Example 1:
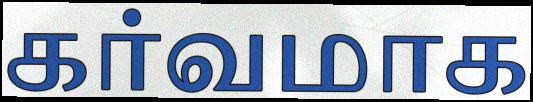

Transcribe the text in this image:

கர்வமாக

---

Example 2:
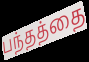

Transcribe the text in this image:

பந்தத்தை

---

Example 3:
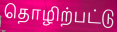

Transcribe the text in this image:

தொழிற்பட்டு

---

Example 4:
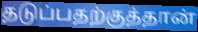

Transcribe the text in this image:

தடுப்பதற்குத்தான்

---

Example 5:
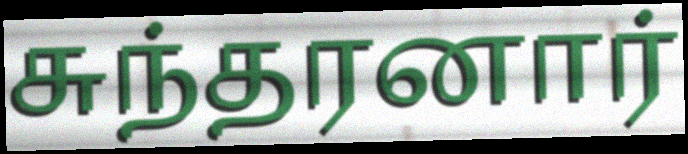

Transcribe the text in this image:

சுந்தரனார்